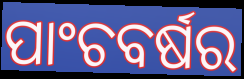
ପାଂଚବର୍ଷର